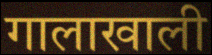
गालाखाली